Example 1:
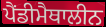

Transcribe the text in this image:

ਪੈਂਡੀਮੈਥਾਲੀਨ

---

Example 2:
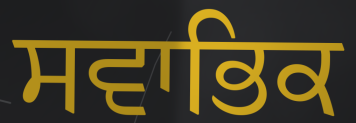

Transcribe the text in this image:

ਸਵਾਭਿਕ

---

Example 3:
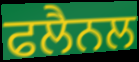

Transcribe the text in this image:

ਫਲੈਨਲ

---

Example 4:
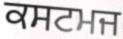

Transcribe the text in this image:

ਕਸਟਮਜ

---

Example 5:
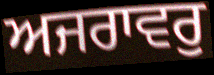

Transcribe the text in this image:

ਅਜਰਾਵਰੁ